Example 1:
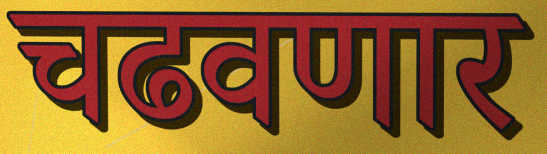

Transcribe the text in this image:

चढवणार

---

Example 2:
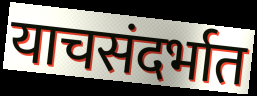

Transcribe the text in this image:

याचसंदर्भात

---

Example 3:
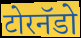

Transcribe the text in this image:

टोरनॅडो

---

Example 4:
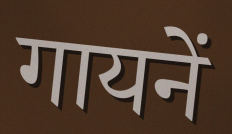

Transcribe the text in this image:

गायनें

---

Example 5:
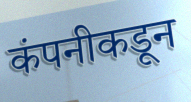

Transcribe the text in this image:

कंपनीकडून